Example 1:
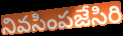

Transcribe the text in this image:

నివసింపజేసిరి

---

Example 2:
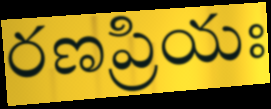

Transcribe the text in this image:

రణప్రియః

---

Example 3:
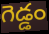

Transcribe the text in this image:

గెడ్డం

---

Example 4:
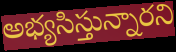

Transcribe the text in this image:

అభ్యసిస్తున్నారని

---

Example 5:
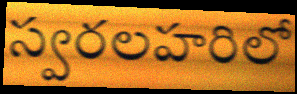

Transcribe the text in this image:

స్వరలహరిలో